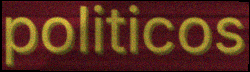
politicos